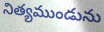
నిత్యముండును